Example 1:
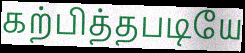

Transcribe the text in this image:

கற்பித்தபடியே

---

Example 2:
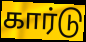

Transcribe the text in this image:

கார்டு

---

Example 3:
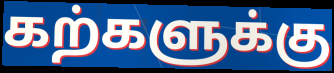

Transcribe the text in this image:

கற்களுக்கு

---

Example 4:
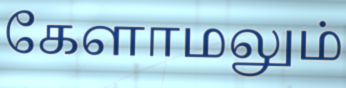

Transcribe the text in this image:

கேளாமலும்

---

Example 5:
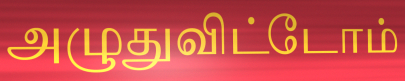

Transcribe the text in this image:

அழுதுவிட்டோம்